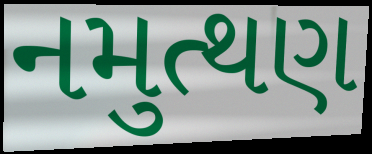
નમુત્થણ